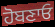
ਹੋਬਣਾਓ